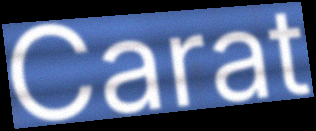
Carat